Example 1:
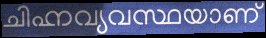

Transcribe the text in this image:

ചിഹ്നവ്യവസ്ഥയാണ്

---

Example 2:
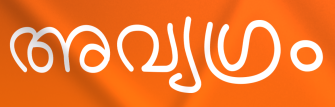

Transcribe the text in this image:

അവ്യഗ്രം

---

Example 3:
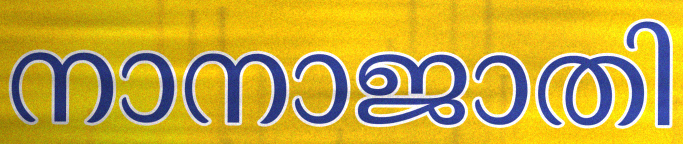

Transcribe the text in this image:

നാനാജാതി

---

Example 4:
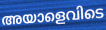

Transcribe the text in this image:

അയാളെവിടെ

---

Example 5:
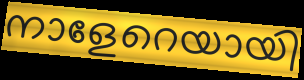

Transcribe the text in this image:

നാളേറെയായി